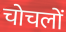
चोचलों